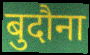
बुदौना